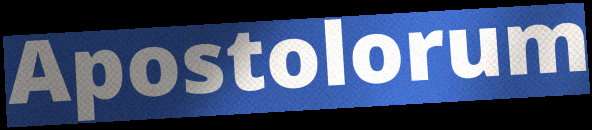
Apostolorum